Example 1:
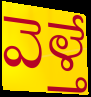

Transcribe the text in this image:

వెళ్తే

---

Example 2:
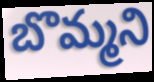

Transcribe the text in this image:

బొమ్మని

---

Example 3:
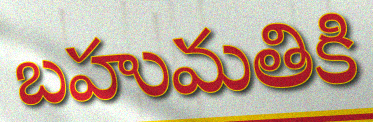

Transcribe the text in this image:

బహుమతికి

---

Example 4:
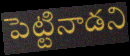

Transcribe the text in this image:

పెట్టినాడని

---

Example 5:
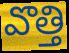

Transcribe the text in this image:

వొత్తి